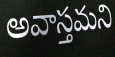
అవాస్తమని